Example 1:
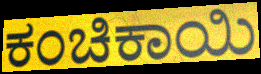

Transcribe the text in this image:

ಕಂಚಿಕಾಯಿ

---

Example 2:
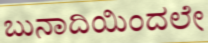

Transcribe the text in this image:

ಬುನಾದಿಯಿಂದಲೇ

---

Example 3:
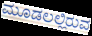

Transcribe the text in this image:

ಮೂಡಲಲ್ಲಿರುವ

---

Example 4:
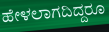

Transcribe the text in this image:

ಹೇಳಲಾಗದಿದ್ದರೂ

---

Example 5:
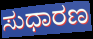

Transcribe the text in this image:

ಸುಧಾರಣ